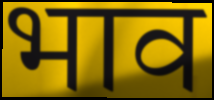
भाव